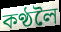
কণ্ঠলৈ